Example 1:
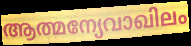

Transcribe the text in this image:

ആത്മന്യേവാഖിലം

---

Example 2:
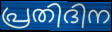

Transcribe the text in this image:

പ്രതിദിന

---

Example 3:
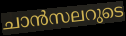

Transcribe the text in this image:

ചാൻസലറുടെ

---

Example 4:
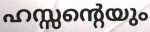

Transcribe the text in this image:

ഹസ്സന്റെയും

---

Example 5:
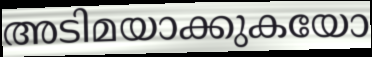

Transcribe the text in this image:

അടിമയാക്കുകയോ